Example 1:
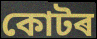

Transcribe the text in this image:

কোটৰ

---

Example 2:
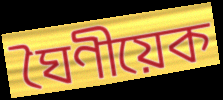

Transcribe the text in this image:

ঘৈণীয়েক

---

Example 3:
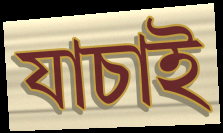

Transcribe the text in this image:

যাচাই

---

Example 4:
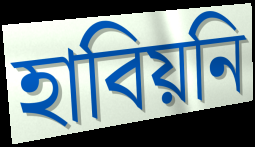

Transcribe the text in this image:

হাবিয়নি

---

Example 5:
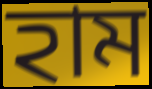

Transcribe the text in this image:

হাম